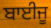
ਬਾਈਜੂ